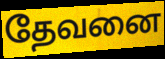
தேவனை